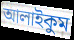
আলাইকুম